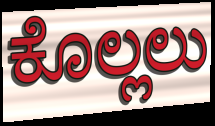
ಕೊಲ್ಲಲು